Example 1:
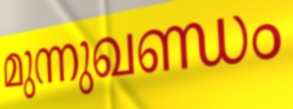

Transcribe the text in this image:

മുന്നുഖണ്ഡം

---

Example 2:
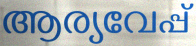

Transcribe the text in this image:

ആര്യവേപ്പ്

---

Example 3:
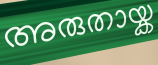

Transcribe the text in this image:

അരുതായ്ക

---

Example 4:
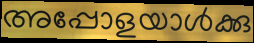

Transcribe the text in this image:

അപ്പോളയാൾക്കു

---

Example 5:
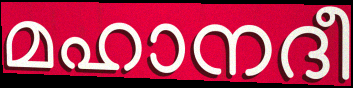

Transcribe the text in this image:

മഹാനദീ